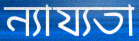
ন্যায্যতা